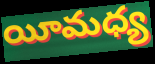
యీమధ్య